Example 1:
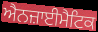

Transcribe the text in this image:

ਐਨਜ਼ਾਈਮੈਟਿਕ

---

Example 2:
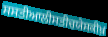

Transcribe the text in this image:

ਸਸਤੀਆਲੀਸਤੀਚਯੇਸਕੀਖ਼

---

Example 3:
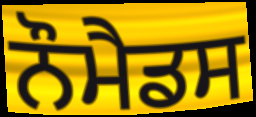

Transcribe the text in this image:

ਨੌਮੈਡਸ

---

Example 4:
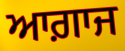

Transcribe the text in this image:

ਆਗ਼ਾਜ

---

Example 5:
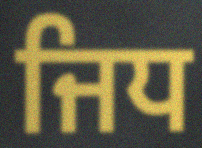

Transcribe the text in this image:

ਜਿਧ